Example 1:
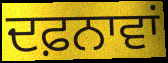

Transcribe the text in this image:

ਦਫ਼ਨਾਵਾਂ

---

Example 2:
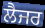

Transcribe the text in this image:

ਲੈਜਰ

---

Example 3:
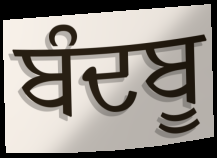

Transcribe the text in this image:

ਬੰਦਬੂ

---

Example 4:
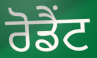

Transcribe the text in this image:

ਰੋਡੈਂਟ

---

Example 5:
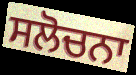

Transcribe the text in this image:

ਸਲੋਚਨਾ